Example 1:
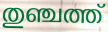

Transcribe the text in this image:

തുഞ്ചത്ത്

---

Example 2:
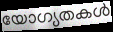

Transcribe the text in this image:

യോഗ്യതകൾ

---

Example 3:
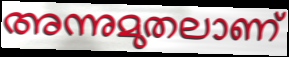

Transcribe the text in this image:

അന്നുമുതലാണ്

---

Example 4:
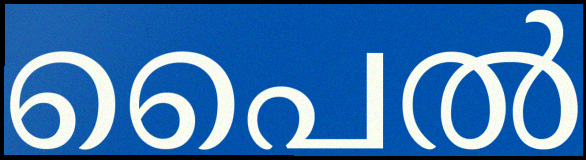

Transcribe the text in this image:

പൈൽ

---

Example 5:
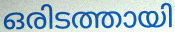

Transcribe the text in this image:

ഒരിടത്തായി